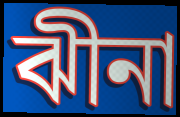
ঝীনা